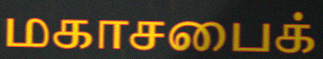
மகாசபைக்